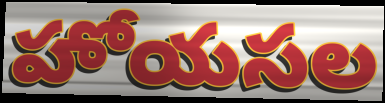
హోయసల